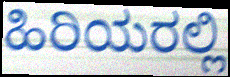
ಹಿರಿಯರಲ್ಲಿ